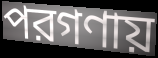
পরগণায়